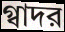
গ্বাদর